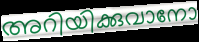
അറിയിക്കുവാനോ